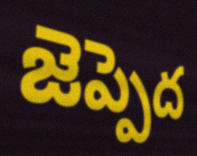
జెప్పెద